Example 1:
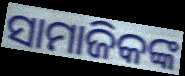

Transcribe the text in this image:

ସାମାଜିକଙ୍କ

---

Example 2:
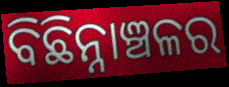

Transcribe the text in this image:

ବିଛିନ୍ନାଞ୍ଚଳର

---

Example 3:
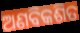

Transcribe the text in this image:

ଅଣବିକଶିତ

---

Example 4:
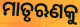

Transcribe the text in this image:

ମାତୃଋଣକୁ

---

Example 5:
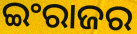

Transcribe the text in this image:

ଇଂରାଜର